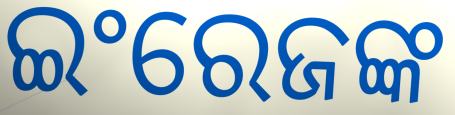
ଇଂରେଜଙ୍କ